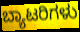
ಬ್ಯಾಟರಿಗಳು